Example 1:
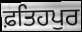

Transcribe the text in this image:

ਫ਼ਤਿਹਪੁਰ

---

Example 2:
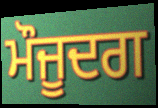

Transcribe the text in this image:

ਮੌਜੂਦਗ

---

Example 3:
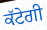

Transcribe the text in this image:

ਕੱਟੇਗੀ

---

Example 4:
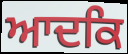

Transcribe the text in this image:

ਆਦਕਿ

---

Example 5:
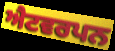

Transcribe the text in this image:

ਐਟਵਰਪਨ